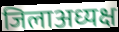
जिलाअध्यक्ष